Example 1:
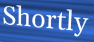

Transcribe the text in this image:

Shortly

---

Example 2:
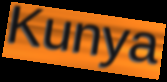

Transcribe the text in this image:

Kunya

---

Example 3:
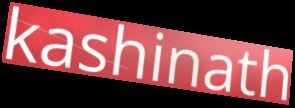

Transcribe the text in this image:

kashinath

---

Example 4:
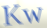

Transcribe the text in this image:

Kw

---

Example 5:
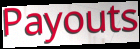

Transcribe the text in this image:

Payouts